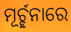
ମୂର୍ଚ୍ଛନାରେ